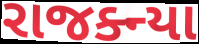
રાજક્ન્યા